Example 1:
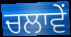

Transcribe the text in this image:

ਚਲਾਵੇਂ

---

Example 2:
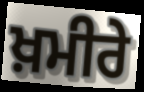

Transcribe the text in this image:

ਖ਼ਮੀਰੇ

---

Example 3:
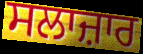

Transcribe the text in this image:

ਸਲਾਜ਼ਾਰ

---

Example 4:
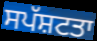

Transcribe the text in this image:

ਸਪੱਸ਼ਟਤਾ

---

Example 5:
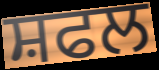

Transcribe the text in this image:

ਸ਼ਫਲ